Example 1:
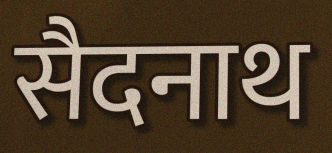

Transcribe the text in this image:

सैदनाथ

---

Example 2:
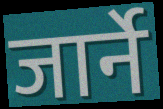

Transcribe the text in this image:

जार्ने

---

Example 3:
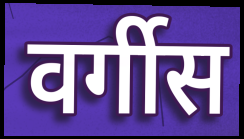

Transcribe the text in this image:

वर्गीस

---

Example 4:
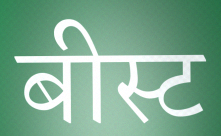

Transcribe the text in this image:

बीस्ट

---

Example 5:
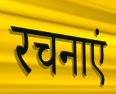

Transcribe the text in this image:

रचनाएं